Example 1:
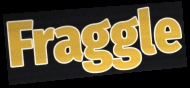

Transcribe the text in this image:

Fraggle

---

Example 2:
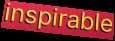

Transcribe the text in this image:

inspirable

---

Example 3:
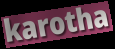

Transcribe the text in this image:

karotha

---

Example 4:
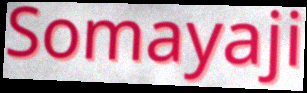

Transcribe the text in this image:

Somayaji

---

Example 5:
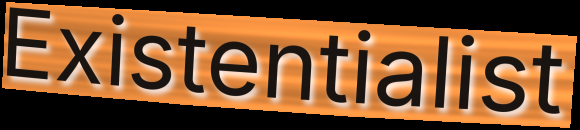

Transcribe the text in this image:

Existentialist